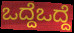
ಒದ್ದೆಒದ್ದೆ